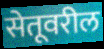
सेतूवरील